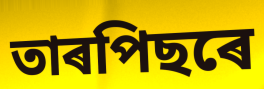
তাৰপিছৰে